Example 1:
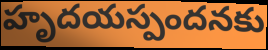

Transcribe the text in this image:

హృదయస్పందనకు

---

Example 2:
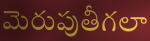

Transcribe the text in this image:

మెరుపుతీగలా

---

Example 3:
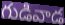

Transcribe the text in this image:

గుడివాడ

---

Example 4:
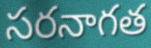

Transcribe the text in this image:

సరనాగత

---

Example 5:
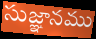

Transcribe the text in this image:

సుజ్ఞానము